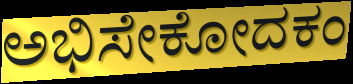
ಅಭಿಸೇಕೋದಕಂ